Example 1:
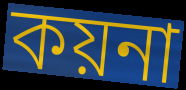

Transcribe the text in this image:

কয়না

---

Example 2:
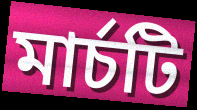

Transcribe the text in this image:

মার্চটি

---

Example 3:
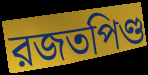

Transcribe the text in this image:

রজতপিণ্ড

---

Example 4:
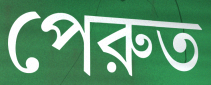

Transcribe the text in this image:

পেরুত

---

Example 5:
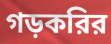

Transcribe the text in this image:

গড়করির